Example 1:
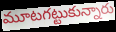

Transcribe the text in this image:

మూటగట్టుకున్నారు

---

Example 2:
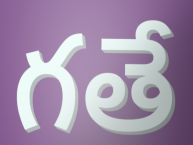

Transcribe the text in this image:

గతే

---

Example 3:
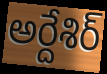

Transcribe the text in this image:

అర్దేశిర్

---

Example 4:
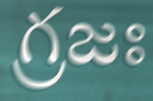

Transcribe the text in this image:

గ్రజః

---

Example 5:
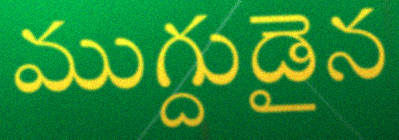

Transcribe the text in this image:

ముగ్దుడైన